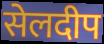
सेलदीप